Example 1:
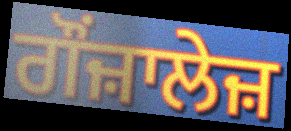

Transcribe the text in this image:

ਗੌਂਜ਼ਾਲੇਜ਼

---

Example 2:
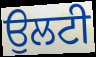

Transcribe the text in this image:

ਉਲਟੀ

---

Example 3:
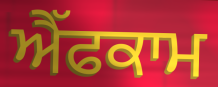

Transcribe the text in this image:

ਐੱਫਕਾਮ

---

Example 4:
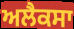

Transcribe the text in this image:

ਅਲੈਕਸਾ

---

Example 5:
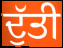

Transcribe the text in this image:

ਦੁੱਤੀ